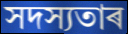
সদস্যতাৰ